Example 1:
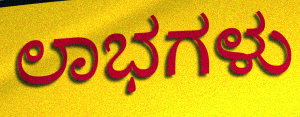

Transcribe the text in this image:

ಲಾಭಗಳು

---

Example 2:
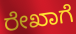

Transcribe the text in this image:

ರೇಖಾಗೆ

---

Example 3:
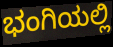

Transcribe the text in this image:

ಭಂಗಿಯಲ್ಲಿ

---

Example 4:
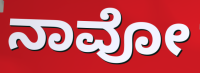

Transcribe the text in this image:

ನಾವೋ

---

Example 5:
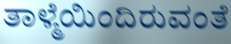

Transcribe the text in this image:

ತಾಳ್ಮೆಯಿಂದಿರುವಂತೆ